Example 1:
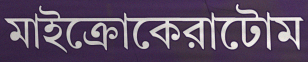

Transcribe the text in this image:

মাইক্রোকেরাটোম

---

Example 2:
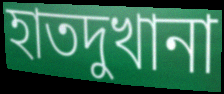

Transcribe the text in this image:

হাতদুখানা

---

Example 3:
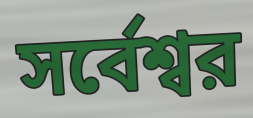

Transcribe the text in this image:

সর্বেশ্বর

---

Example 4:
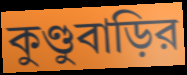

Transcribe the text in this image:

কুণ্ডুবাড়ির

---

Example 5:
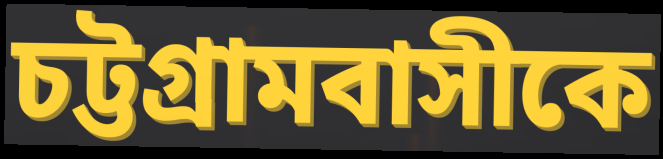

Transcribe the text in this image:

চট্টগ্রামবাসীকে